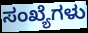
ಸಂಖ್ಯೆಗಳು